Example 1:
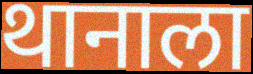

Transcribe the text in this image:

थानाला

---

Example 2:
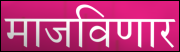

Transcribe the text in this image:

माजविणार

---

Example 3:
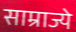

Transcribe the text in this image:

साम्राज्ये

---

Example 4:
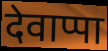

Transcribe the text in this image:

देवाप्पा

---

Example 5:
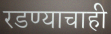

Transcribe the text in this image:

रडण्याचाही